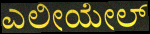
ಎಲೀಯೇಲ್